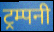
ट्रम्पनी